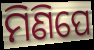
ମିଣିପେ